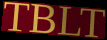
TBLT